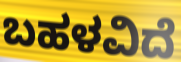
ಬಹಳವಿದೆ